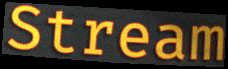
Stream